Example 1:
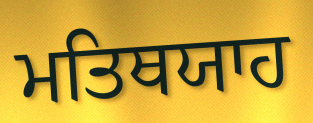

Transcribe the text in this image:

ਮਤਿਥਯਾਹ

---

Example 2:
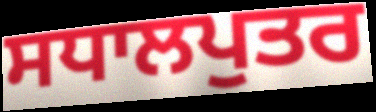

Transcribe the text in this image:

ਸਧਾਲਪੁਤਰ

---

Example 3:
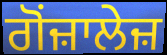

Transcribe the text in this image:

ਗੋਂਜ਼ਾਲੇਜ਼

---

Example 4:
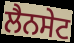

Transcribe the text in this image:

ਲੈਨਸੇਟ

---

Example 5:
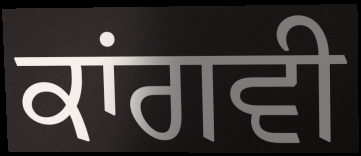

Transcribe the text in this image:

ਕਾਂਗਵੀ